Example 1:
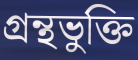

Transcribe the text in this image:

গ্রন্থভুক্তি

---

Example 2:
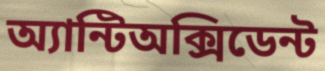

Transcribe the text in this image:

অ্যান্টিঅক্সিডেন্ট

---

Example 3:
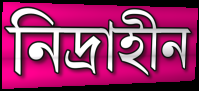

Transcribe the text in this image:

নিদ্রাহীন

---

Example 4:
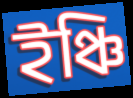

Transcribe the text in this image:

ইঞ্চি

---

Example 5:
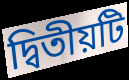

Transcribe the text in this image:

দ্বিতীয়টি